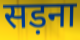
सड़ना